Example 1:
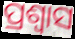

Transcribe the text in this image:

ପ୍ରଶ୍ୱାସ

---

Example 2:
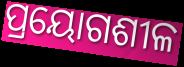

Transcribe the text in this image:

ପ୍ରୟୋଗଶୀଳ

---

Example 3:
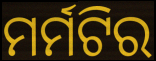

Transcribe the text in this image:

ମର୍ମଟିର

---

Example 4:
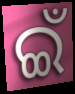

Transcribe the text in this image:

ଇଁ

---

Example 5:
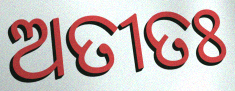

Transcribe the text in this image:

ଅତୀତଃ